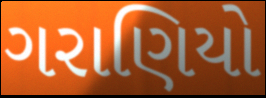
ગરાણિયો